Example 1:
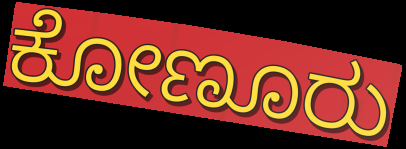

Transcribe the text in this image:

ಕೋಣೂರು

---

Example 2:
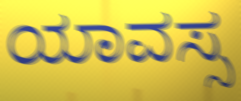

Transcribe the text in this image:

ಯಾವಸ್ಸ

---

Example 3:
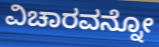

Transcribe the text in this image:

ವಿಚಾರವನ್ನೋ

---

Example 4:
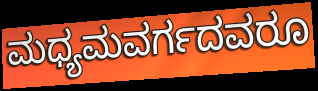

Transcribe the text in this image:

ಮಧ್ಯಮವರ್ಗದವರೂ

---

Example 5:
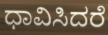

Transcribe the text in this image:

ಧಾವಿಸಿದರೆ